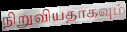
நிறுவியதாகவும்